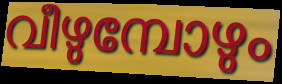
വീഴുമ്പോഴും